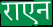
राएन